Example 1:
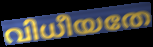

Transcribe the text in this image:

വിധീയതേ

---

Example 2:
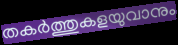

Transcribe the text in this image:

തകർത്തുകളയുവാനും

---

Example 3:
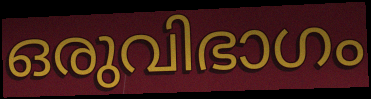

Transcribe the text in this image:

ഒരുവിഭാഗം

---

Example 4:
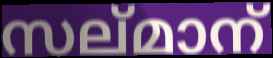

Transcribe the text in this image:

സല്മാന്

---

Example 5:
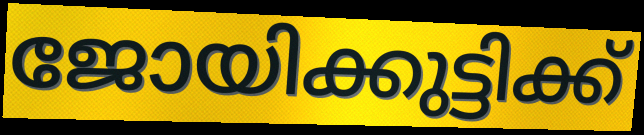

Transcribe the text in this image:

ജോയിക്കുട്ടിക്ക്